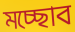
মচ্ছোব